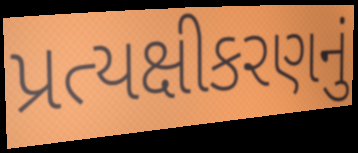
પ્રત્યક્ષીકરણનું